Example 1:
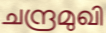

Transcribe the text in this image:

ചന്ദ്രമുഖി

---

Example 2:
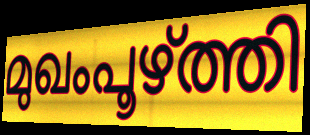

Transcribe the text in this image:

മുഖംപൂഴ്ത്തി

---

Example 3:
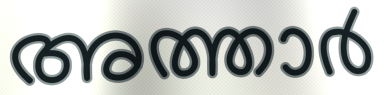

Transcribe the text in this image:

അത്താർ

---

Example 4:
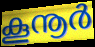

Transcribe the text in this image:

കൂനൂർ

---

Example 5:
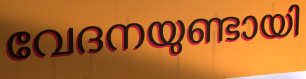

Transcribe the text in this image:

വേദനയുണ്ടായി